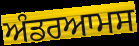
ਅੰਡਰਆਮਸ